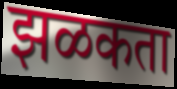
झळकता